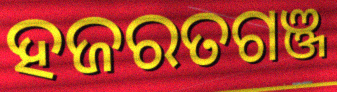
ହଜରତଗଞ୍ଜ